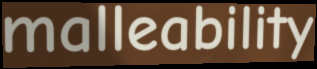
malleability